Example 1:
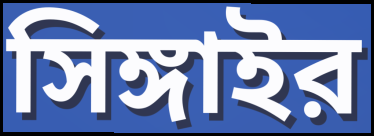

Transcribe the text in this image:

সিঙ্গাইর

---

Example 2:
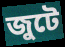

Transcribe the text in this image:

জুটে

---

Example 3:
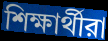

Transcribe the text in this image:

শিক্ষার্থীরা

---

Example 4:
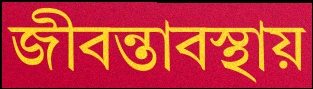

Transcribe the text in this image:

জীবন্তাবস্থায়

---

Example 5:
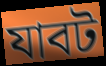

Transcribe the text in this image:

যাবট